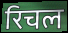
रिचल